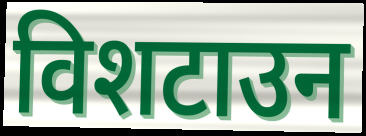
विशटाउन